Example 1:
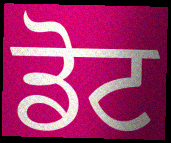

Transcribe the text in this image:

ਡੋਟ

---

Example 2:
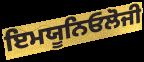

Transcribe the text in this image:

ਇਮਯੂਨਿਓਲੋਜੀ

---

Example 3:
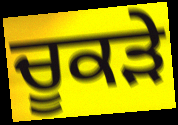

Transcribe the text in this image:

ਚੂਕੜੇ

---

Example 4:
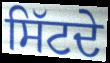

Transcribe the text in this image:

ਸਿੱਟਦੇ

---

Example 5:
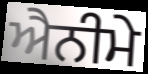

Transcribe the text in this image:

ਐਨੀਮੇ